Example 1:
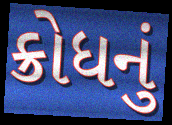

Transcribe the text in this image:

ક્રોધનું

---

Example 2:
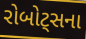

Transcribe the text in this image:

રોબોટ્સના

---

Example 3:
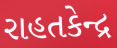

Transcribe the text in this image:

રાહતકેન્દ્ર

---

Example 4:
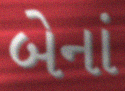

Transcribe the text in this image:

બેનાં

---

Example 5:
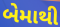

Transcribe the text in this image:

બેમાથી